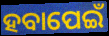
ହବାପେଇଁ